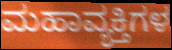
ಮಹಾವ್ಯಕ್ತಿಗಳ